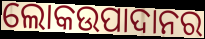
ଲୋକଉପାଦାନର